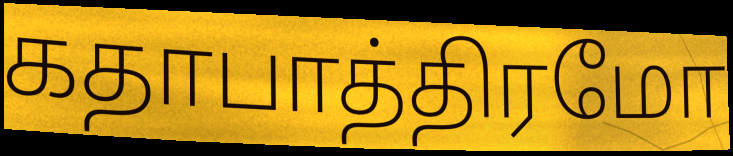
கதாபாத்திரமோ